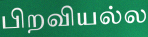
பிறவியல்ல